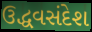
ઉદ્ધવસંદેશ